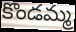
కొండమ్మ